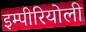
इम्पीरियोली